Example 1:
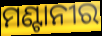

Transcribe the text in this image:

ମଣ୍ଟାନୀର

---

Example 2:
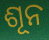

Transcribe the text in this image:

ଶୂନ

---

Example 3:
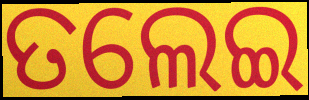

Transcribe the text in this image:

ତଲେଇ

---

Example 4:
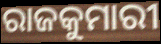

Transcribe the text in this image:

ରାଜକୁମାରୀ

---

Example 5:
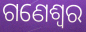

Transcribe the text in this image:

ଗଣେଶ୍ୱର